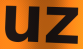
uz